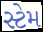
સ્ટેમ